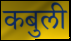
कबुली